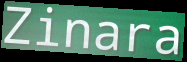
Zinara